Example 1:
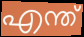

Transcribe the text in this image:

എന്ത്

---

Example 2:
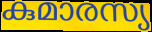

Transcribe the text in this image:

കുമാരസ്യ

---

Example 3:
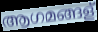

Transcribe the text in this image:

ആഗമങ്ങള്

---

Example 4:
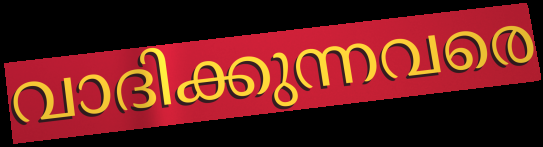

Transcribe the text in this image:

വാദിക്കുന്നവരെ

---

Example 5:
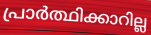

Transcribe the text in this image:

പ്രാർത്ഥിക്കാറില്ല